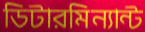
ডিটারমিন্যান্ট